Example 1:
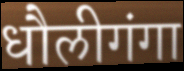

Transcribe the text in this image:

धौलीगंगा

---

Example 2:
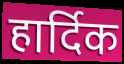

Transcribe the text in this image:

हार्दिक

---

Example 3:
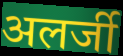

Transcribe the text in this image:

अलर्जी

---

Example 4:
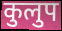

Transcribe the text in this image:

कुलुप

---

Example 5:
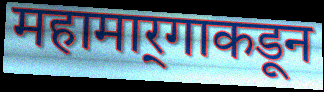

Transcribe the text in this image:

महामार्गाकडून